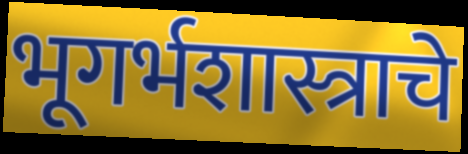
भूगर्भशास्त्राचे